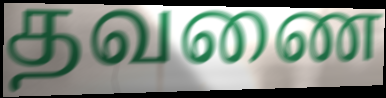
தவணை